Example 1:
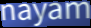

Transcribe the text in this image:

nayam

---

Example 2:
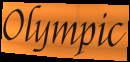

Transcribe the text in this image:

Olympic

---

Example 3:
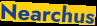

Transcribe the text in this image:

Nearchus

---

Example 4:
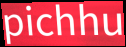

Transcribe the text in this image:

pichhu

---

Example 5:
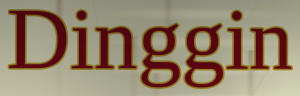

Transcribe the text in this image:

Dinggin